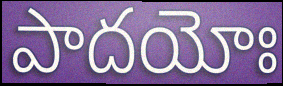
పాదయోః